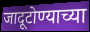
जादूटोण्याच्या